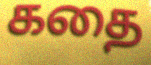
கதை